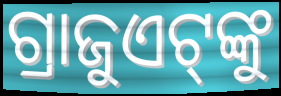
ଗ୍ରାଜୁଏଟ୍‌ଙ୍କୁ